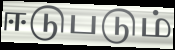
ஈடுபடும்